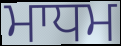
ਮਾਧਮ